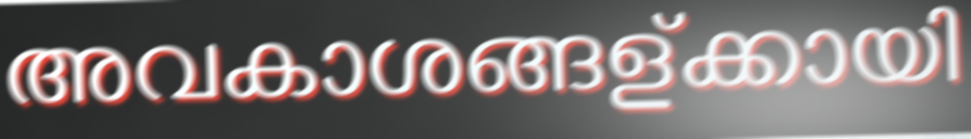
അവകാശങ്ങള്ക്കായി